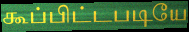
கூப்பிட்டபடியே